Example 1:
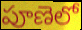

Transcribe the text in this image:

పూణెలో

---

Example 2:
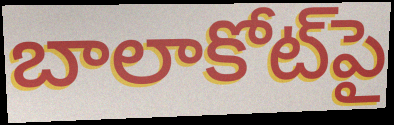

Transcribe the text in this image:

బాలాకోట్‌పై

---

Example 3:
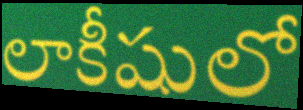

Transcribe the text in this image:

లాకీషులో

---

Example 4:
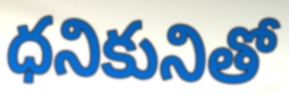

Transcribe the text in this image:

ధనికునితో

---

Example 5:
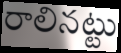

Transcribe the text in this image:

రాలినట్టు